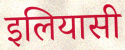
इलियासी